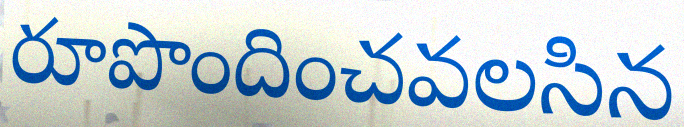
రూపొందించవలసిన